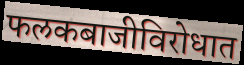
फलकबाजीविरोधात